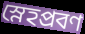
স্নেহপ্রবণ